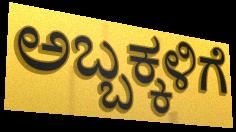
ಅಬ್ಬಕ್ಕಳಿಗೆ